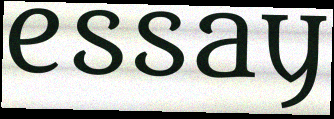
essay